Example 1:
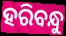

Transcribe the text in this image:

ହରିବନ୍ଧୁ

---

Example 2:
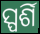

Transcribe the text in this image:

ସ୍ପର୍ଶି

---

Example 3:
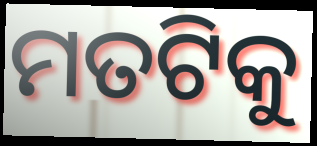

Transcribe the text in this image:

ମତଟିକୁ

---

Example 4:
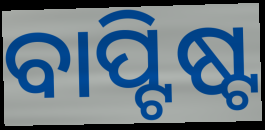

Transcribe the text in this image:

ବାପ୍ଟିଷ୍ଟ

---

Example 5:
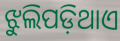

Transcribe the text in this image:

ଝୁଲିପଡ଼ିଥାଏ